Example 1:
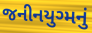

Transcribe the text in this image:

જનીનયુગ્મનું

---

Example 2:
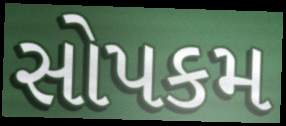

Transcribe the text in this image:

સોપકમ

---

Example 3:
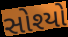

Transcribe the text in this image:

સોશ્યો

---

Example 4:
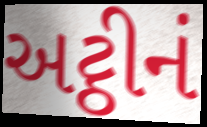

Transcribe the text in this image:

અટ્ઠીનં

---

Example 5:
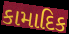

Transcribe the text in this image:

કામાદિક